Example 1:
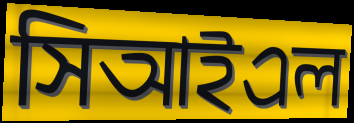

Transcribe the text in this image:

সিআইএল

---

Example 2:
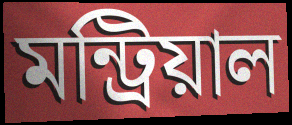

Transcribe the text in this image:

মন্ট্রিয়াল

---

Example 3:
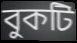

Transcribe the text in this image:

বুকটি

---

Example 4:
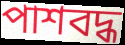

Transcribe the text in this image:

পাশবদ্ধ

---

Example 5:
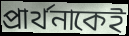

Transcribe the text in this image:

প্রার্থনাকেই